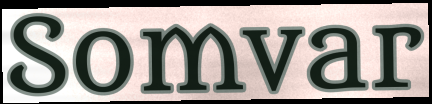
Somvar